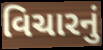
વિચારનું